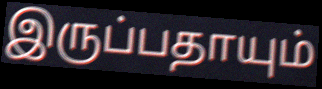
இருப்பதாயும்